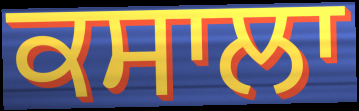
ਕਸਾਲਾ